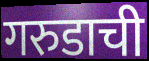
गरुडाची